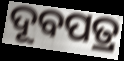
ଦୂବପତ୍ର